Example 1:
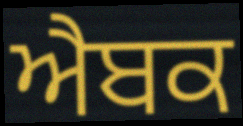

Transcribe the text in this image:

ਐਬਕ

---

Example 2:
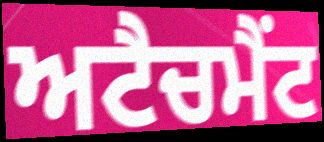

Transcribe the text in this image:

ਅਟੈਚਮੈਂਟ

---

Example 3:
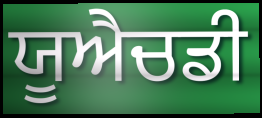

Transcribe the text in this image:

ਯੂਐਚਡੀ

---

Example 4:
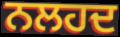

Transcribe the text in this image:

ਨਲਹਦ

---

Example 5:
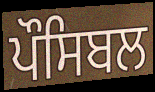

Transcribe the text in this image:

ਪੌਸਿਬਲ